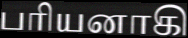
பரியனாகி